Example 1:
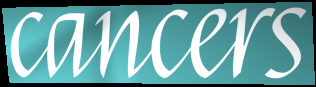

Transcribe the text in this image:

cancers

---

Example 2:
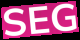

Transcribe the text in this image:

SEG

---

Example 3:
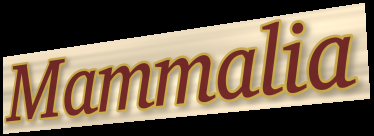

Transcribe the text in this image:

Mammalia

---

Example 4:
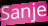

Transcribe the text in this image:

Sanje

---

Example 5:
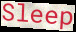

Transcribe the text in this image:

Sleep